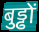
बुड्ढों